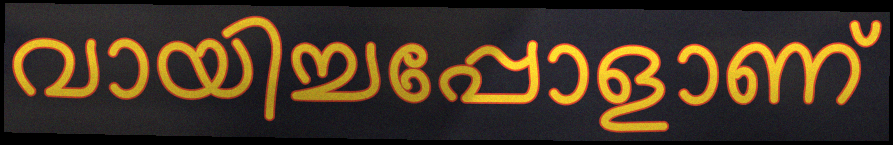
വായിച്ചപ്പോളാണ്